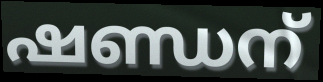
ഷണ്ഡന്